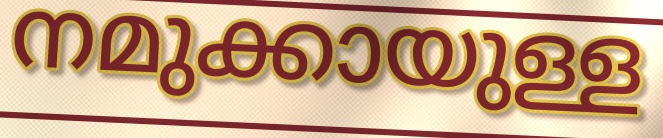
നമുക്കായുള്ള